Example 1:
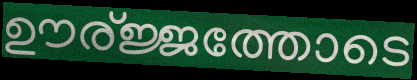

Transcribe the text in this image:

ഊര്ജ്ജത്തോടെ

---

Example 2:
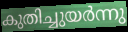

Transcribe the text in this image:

കുതിച്ചുയർന്നു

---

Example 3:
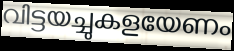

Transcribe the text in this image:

വിട്ടയച്ചുകളയേണം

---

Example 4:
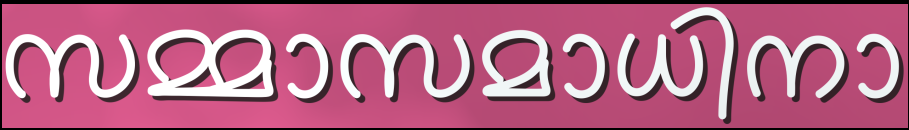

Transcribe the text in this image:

സമ്മാസമാധിനാ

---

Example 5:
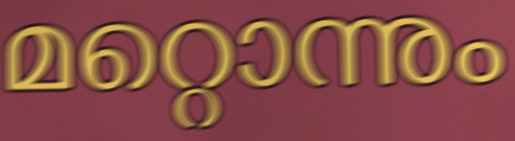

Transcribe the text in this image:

മറ്റൊന്നും